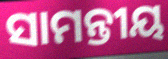
ସାମନ୍ତୀୟ